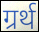
ग्रर्थ